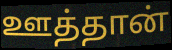
ஊத்தான்